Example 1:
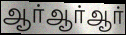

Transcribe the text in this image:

ஆர்ஆர்ஆர்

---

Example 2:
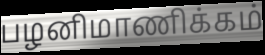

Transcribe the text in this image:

பழனிமாணிக்கம்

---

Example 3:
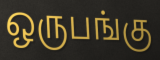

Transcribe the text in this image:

ஒருபங்கு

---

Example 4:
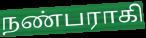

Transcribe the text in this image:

நண்பராகி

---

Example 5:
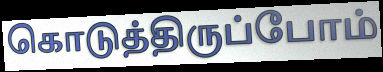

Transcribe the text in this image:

கொடுத்திருப்போம்